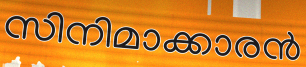
സിനിമാക്കാരൻ